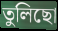
তুলিছো